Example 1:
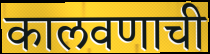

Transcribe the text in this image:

कालवणाची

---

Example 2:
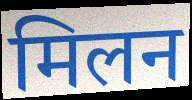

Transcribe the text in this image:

मिलन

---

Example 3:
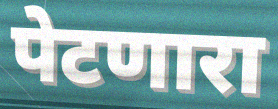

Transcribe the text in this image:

पेटणारा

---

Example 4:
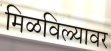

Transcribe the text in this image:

मिळविल्यावर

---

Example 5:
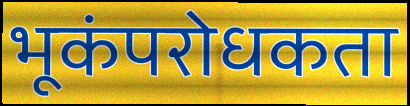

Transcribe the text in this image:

भूकंपरोधकता